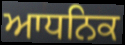
ਆਧਨਿਕ